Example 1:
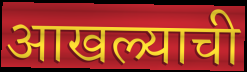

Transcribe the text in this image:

आखल्याची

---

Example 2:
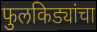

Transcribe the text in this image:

फुलकिड्यांचा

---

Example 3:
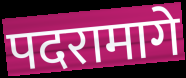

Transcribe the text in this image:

पदरामागे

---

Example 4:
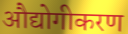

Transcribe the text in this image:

औद्योगीकरण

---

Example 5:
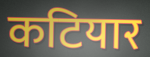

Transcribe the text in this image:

कटियार